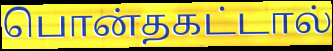
பொன்தகட்டால்